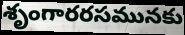
శృంగారరసమునకు